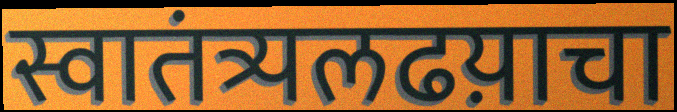
स्वातंत्र्यलढय़ाचा